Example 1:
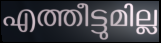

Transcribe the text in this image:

എത്തീട്ടുമില്ല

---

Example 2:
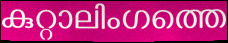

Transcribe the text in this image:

കുറ്റാലിംഗത്തെ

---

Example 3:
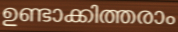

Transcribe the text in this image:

ഉണ്ടാക്കിത്തരാം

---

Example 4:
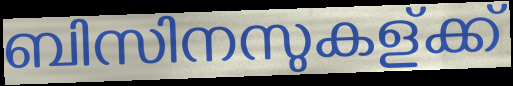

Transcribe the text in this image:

ബിസിനസുകള്ക്ക്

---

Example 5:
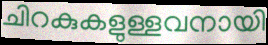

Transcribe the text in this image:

ചിറകുകളുള്ളവനായി